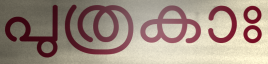
പുത്രകാഃ